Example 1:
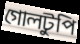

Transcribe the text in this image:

গোলটুপি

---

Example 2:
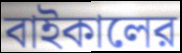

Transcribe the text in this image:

বাইকালের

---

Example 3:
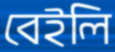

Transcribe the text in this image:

বেইলি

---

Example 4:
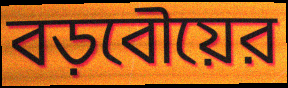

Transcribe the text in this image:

বড়বৌয়ের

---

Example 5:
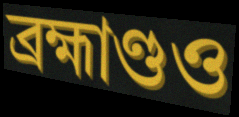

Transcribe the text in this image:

ব্রহ্মাণ্ডও